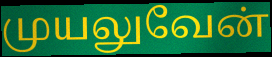
முயலுவேன்